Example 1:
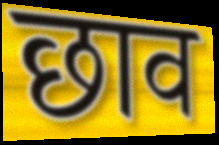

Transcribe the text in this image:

छाव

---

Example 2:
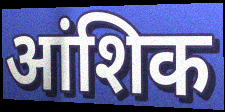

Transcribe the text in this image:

आंशिक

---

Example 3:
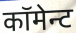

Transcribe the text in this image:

कॉमेन्ट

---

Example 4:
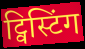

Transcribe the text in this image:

ट्विस्टिंग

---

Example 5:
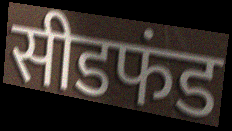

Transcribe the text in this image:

सीडफंड